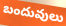
బందువులు